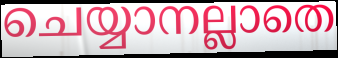
ചെയ്യാനല്ലാതെ